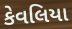
કેવલિયા